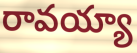
రావయ్యా